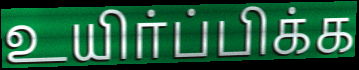
உயிர்ப்பிக்க